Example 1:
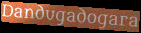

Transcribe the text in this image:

Dandugadogara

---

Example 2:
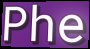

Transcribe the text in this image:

Phe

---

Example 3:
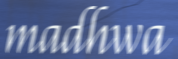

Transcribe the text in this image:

madhwa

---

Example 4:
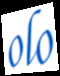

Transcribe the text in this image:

olo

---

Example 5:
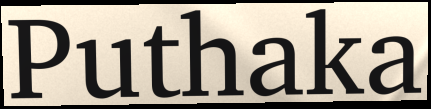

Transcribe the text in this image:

Puthaka